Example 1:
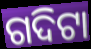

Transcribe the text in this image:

ଗଦିଟା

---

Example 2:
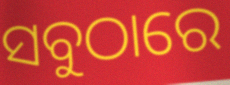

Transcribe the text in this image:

ସବୁଠାରେ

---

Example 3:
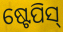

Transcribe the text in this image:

ଷ୍ଟେପିସ୍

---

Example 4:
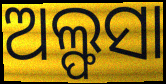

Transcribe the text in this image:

ଅଲ୍ଫସା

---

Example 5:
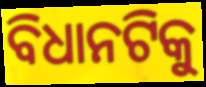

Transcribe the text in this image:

ବିଧାନଟିକୁ